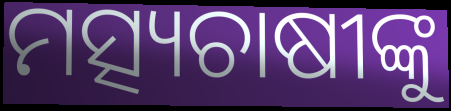
ମତ୍ସ୍ୟଚାଷୀଙ୍କୁ